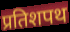
प्रतिशपथ